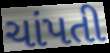
ચાંપતી